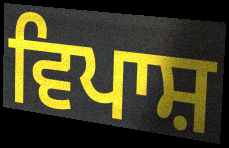
ਵਿਪਾਸ਼